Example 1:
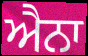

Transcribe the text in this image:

ਐਨਾ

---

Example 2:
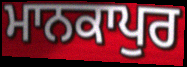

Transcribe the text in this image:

ਮਾਨਕਾਪੁਰ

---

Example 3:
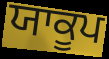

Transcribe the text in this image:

ਯਾਕੂਪ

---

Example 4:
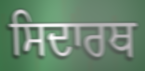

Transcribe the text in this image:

ਸਿਦਾਰਥ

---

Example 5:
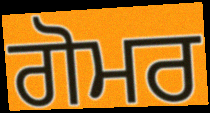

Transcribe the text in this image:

ਗੋਮਰ